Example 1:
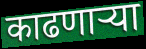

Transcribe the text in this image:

काढणार्‍या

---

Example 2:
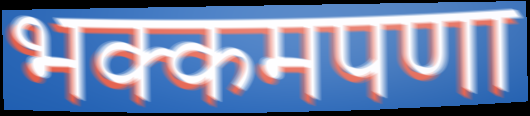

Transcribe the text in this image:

भक्कमपणा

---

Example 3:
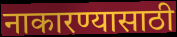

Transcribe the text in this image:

नाकारण्यासाठी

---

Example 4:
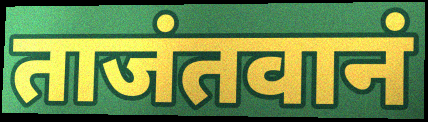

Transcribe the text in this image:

ताजंतवानं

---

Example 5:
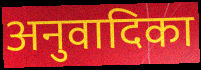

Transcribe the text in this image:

अनुवादिका